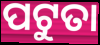
ପଟୁତା